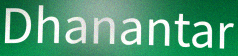
Dhanantar